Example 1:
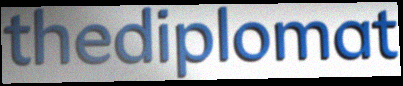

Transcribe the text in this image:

thediplomat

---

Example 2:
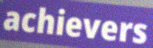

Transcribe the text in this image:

achievers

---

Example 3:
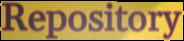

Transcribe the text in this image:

Repository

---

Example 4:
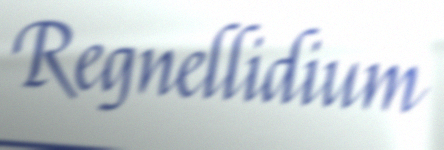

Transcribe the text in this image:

Regnellidium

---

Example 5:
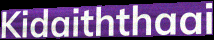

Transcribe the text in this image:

Kidaiththaai